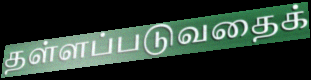
தள்ளப்படுவதைக்